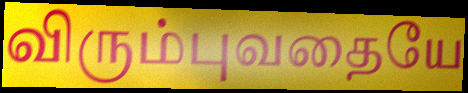
விரும்புவதையே